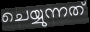
ചെയ്യുന്നത്